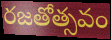
రజతోత్సవం